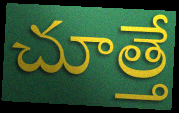
చూత్తే